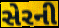
સેરની